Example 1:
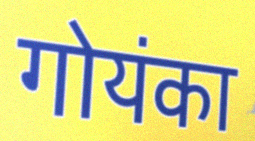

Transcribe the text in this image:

गोयंका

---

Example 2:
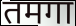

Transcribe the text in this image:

तमगा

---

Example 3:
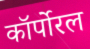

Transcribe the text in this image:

कॉर्पोरल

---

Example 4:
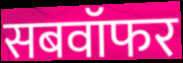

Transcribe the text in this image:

सबवॉफर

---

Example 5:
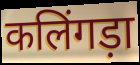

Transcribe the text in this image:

कलिंगड़ा